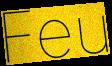
Feu